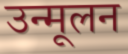
उन्मूलन